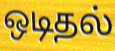
ஒடிதல்